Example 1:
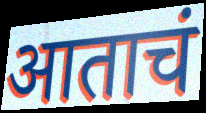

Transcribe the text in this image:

आताचं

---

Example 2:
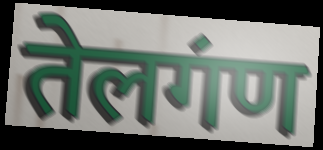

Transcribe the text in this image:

तेलगंण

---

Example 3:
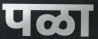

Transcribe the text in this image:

पळा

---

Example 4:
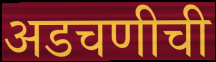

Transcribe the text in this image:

अडचणीची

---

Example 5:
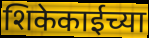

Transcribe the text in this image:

शिकेकाईच्या